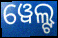
ୱେଲ୍ଟ